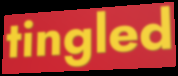
tingled